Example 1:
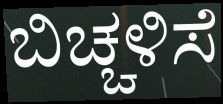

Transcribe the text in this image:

ಬಿಚ್ಚಳಿಸೆ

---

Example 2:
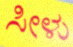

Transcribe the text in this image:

ಸೀಳು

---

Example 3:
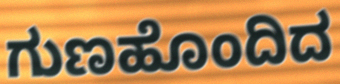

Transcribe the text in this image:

ಗುಣಹೊಂದಿದ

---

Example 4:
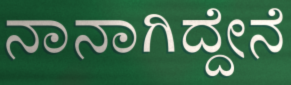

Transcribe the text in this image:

ನಾನಾಗಿದ್ದೇನೆ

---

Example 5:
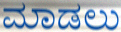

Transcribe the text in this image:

ಮಾಡಲು